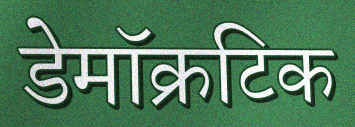
डेमॉक्रटिक